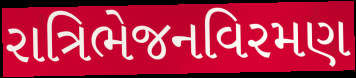
રાત્રિભેજનવિરમણ